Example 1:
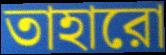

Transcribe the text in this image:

তাহারো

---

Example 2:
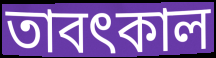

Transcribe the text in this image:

তাবৎকাল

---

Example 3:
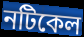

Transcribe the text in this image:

নটিকেল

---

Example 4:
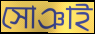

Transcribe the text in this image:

সোঞাই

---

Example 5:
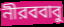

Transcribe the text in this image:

নীরববাবু